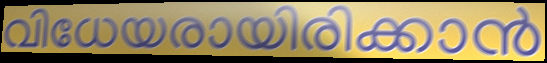
വിധേയരായിരിക്കാൻ